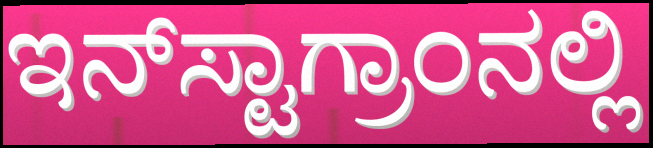
ಇನ್‌ಸ್ಟಾಗ್ರಾಂನಲ್ಲಿ